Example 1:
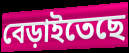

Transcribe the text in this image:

বেড়াইতেছে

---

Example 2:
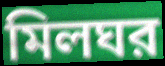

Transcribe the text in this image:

মিলঘর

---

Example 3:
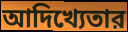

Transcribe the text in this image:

আদিখ্যেতার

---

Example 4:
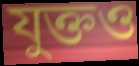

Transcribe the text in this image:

যুক্তও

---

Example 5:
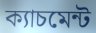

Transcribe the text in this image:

ক্যাচমেন্ট